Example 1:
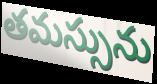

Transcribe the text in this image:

తమస్సును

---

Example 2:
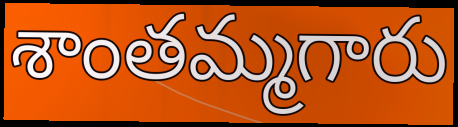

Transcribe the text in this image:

శాంతమ్మగారు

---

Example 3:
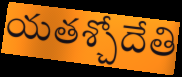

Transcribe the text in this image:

యతశ్చోదేతి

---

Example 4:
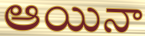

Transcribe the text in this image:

ఆయినా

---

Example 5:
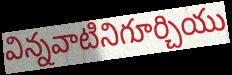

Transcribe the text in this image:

విన్నవాటినిగూర్చియు